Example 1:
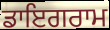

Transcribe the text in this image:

ਡਾਇਗਰਾਮ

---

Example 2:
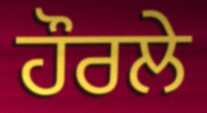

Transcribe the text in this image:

ਹੌਰਲੇ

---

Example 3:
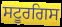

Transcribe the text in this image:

ਸਟੂਰਗਿਸ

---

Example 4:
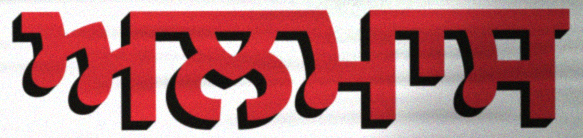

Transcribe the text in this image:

ਅਲਮਾਸ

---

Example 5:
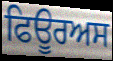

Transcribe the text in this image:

ਫਿਊਰਅਸ